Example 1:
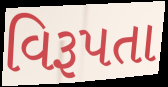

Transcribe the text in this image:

વિરૂપતા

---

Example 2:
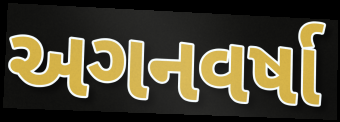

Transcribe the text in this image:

અગનવર્ષા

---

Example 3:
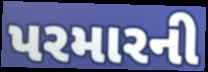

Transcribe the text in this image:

પરમારની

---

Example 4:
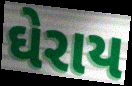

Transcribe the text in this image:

ઘેરાય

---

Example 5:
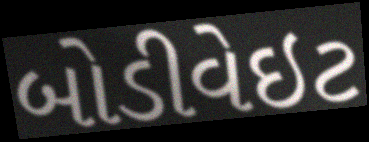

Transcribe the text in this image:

બોડીવેઇટ